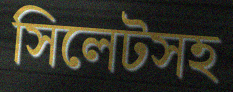
সিলেটসহ